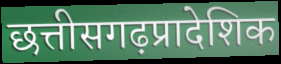
छत्तीसगढ़प्रादेशिक